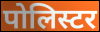
पोलिस्टर